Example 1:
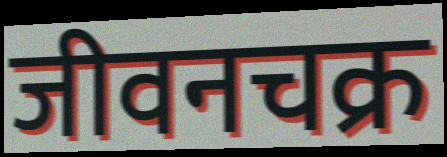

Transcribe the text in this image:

जीवनचक्र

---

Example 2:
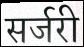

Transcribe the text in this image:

सर्जरी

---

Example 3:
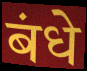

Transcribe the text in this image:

बंधे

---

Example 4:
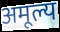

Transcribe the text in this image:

अमूल्‍य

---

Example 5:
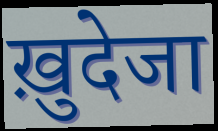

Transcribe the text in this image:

ख़ुदेजा